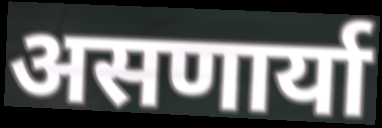
असणार्या